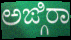
ಅಙ್ಗಿರಾ